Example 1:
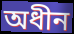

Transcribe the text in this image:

অধীন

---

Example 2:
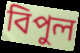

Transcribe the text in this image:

বিপুল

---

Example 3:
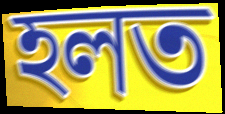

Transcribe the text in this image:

হলত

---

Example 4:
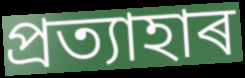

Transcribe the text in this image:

প্ৰত্যাহাৰ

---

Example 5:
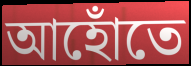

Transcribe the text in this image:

আহোঁতে